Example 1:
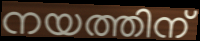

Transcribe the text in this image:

നയത്തിന്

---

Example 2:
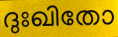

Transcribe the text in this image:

ദുഃഖിതോ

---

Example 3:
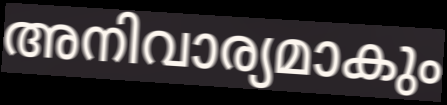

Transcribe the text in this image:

അനിവാര്യമാകും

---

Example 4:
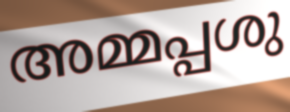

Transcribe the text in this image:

അമ്മപ്പശു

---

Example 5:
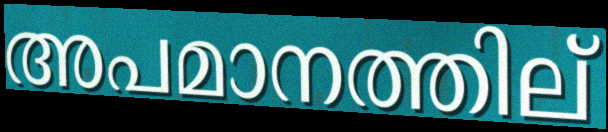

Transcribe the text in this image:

അപമാനത്തില്